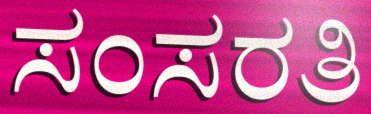
ಸಂಸರತಿ